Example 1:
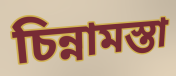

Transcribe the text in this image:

চিন্নামস্তা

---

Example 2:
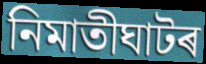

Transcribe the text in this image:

নিমাতীঘাটৰ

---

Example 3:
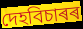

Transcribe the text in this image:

দেহবিচাৰৰ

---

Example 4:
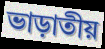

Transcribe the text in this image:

ভাড়াতীয়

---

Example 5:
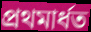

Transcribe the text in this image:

প্ৰথমাৰ্ধত